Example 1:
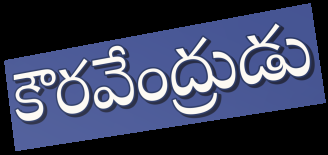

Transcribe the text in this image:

కౌరవేంద్రుడు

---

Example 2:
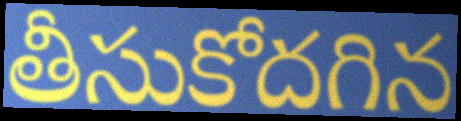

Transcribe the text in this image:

తీసుకోదగిన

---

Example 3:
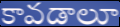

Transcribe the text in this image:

కావడాలూ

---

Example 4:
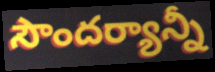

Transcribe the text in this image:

సౌందర్యాన్నీ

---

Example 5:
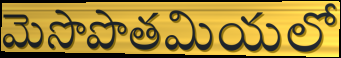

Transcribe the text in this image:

మెసొపొతమియలో